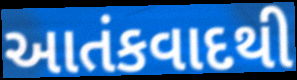
આતંકવાદથી